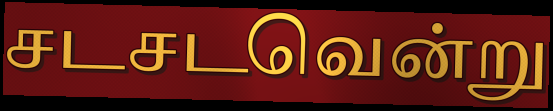
சடசடவென்று